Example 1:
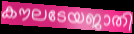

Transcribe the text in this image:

കൗലടേയജാതി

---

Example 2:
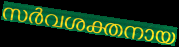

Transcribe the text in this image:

സർവശക്തനായ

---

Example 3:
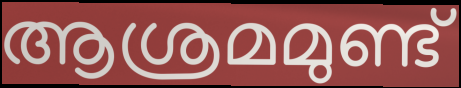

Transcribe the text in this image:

ആശ്രമമുണ്ട്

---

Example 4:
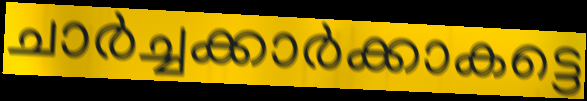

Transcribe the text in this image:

ചാർച്ചക്കാർക്കാകട്ടെ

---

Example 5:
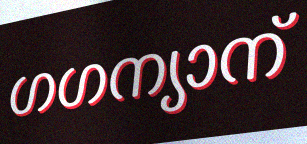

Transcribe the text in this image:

ഗഗന്യാന്